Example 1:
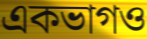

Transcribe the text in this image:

একভাগও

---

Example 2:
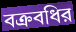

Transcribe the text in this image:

বক্রবধির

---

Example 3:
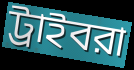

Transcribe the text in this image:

ট্রাইবরা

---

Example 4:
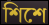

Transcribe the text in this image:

শিশে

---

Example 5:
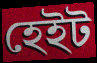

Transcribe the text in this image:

হেইট